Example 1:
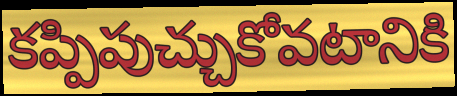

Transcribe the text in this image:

కప్పిపుచ్చుకోవటానికి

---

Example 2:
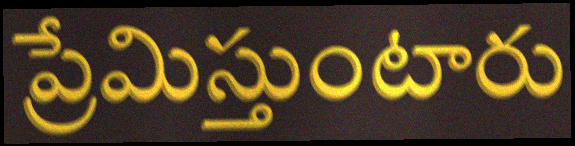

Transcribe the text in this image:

ప్రేమిస్తుంటారు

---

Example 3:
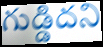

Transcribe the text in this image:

గుడ్డిదని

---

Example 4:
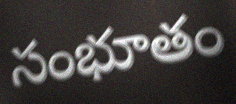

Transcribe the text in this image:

సంభూతం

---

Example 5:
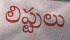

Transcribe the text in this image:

లిప్టులు